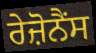
ਰੇਜ਼ੋਨੈਂਸ